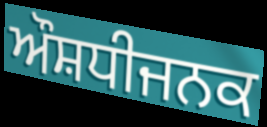
ਔਸ਼ਧੀਜਨਕ